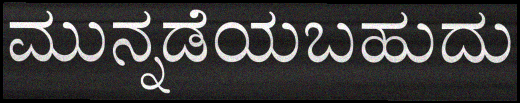
ಮುನ್ನಡೆಯಬಹುದು